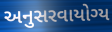
અનુસરવાયોગ્ય